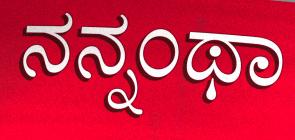
ನನ್ನಂಥಾ